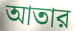
আতার